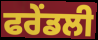
ਫਰੇਂਡਲੀ